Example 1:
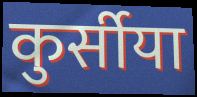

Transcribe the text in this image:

कुर्सीया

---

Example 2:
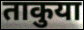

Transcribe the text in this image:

ताकुया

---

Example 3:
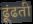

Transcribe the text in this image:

ढूंढती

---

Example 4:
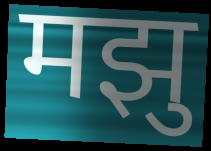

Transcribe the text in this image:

मझु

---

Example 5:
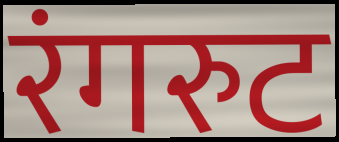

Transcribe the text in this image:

रंगरुट